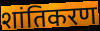
शांतिकरण